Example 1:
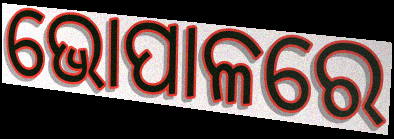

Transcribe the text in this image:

ଭୋପାଳରେ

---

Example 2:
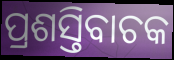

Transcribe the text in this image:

ପ୍ରଶସ୍ତିବାଚକ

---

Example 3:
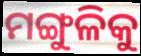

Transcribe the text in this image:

ମଙ୍ଗୁଳିକୁ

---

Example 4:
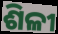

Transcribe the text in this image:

ଶିଳୀ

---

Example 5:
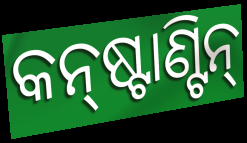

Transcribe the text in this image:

କନ୍‌ଷ୍ଟାଣ୍ଟିନ୍